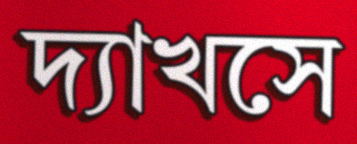
দ্যাখসে